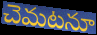
చెమటనూ